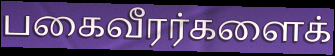
பகைவீரர்களைக்